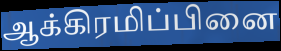
ஆக்கிரமிப்பினை